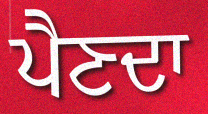
ਪੈਣਦਾ